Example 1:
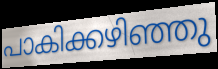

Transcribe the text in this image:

പാകിക്കഴിഞ്ഞു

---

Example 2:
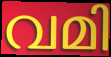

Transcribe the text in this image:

വമി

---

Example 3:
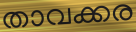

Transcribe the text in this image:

താവക്കര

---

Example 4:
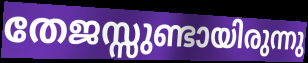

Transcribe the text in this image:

തേജസ്സുണ്ടായിരുന്നു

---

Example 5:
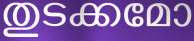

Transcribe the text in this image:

തുടക്കമോ